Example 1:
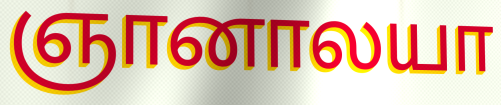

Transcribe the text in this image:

ஞானாலயா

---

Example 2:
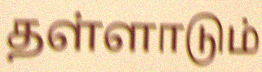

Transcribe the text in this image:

தள்ளாடும்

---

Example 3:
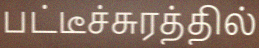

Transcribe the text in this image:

பட்டீச்சுரத்தில்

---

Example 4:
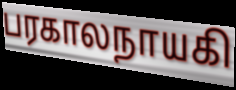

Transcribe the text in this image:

பரகாலநாயகி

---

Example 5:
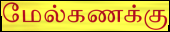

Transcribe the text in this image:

மேல்கணக்கு